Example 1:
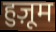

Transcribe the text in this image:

हुज़ूम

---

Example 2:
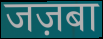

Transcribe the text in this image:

जज़बा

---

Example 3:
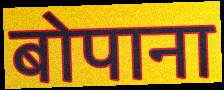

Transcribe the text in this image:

बोपाना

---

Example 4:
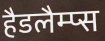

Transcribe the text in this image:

हैडलैम्प्स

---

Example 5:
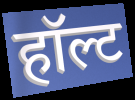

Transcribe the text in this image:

हॉल्‍ट